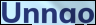
Unnao